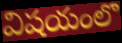
విషయంలొ